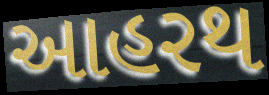
આહરથ